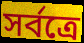
সৰ্বত্ৰে